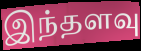
இந்தளவு